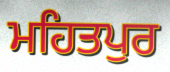
ਮਹਿਤਪੁਰ